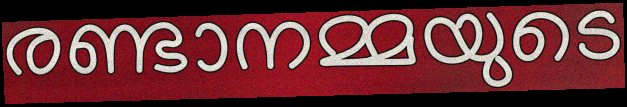
രണ്ടാനമ്മയുടെ